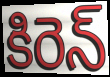
కిరెన్